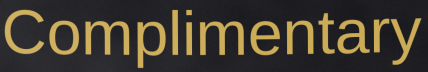
Complimentary